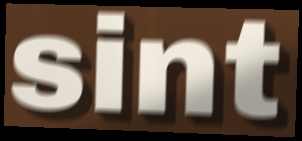
sint